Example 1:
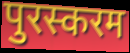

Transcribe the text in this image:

पुरस्करम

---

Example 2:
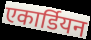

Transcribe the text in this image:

एकार्डियन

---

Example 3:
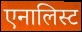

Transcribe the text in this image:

एनालिस्ट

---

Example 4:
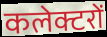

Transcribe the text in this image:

कलेक्टरों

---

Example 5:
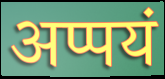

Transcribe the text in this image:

अप्पयं